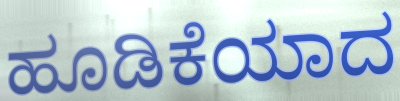
ಹೂಡಿಕೆಯಾದ